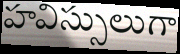
హవిస్సులుగా